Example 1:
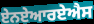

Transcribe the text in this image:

ਏਨਏਆਰਏਐਸ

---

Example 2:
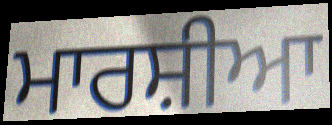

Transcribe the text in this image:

ਮਾਰਸ਼ੀਆ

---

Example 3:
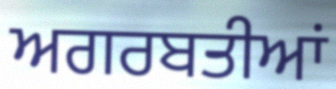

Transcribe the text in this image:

ਅਗਰਬਤੀਆਂ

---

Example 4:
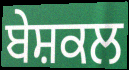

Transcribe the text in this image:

ਬੇਸ਼ਕਲ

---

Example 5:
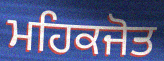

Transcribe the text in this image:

ਮਹਿਕਜੋਤ